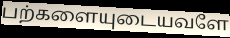
பற்களையுடையவளே